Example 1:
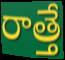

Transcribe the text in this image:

రాత్తే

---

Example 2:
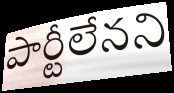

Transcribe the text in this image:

పార్టీలేనని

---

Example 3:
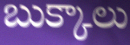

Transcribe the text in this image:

బుక్కాలు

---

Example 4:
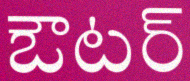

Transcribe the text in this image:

ఔటర్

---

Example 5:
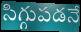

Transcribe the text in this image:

సిగ్గుపడనే